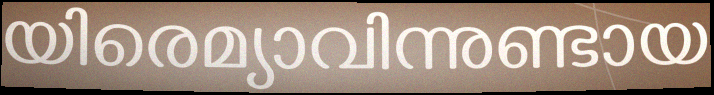
യിരെമ്യാവിന്നുണ്ടായ